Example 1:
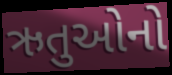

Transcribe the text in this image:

ઋતુઓનો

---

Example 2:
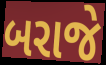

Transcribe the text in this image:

બરાજે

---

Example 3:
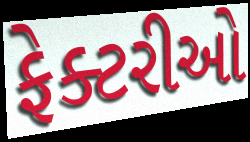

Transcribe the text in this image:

ફેક્ટરીઓ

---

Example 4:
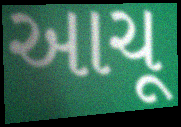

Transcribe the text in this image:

આચૂ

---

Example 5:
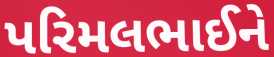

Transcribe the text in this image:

પરિમલભાઈને